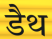
डैथ